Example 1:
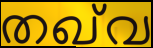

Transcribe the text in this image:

തഖ്‌വ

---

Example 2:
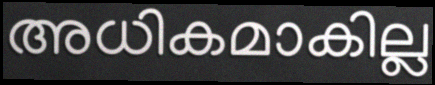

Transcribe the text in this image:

അധികമാകില്ല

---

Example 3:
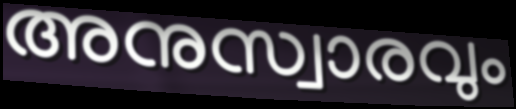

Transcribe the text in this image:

അനുസ്വാരവും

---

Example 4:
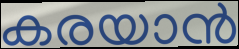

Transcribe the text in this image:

കരയാൻ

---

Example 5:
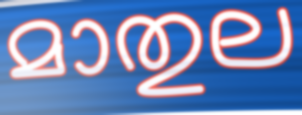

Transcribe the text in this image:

മാതുല